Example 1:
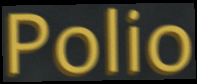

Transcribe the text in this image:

Polio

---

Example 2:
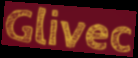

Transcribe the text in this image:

Glivec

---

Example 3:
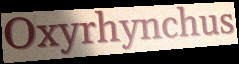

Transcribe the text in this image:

Oxyrhynchus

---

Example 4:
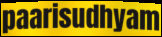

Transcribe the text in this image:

paarisudhyam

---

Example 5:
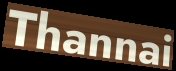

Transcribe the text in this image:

Thannai